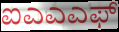
ಐಎಎಎಫ್